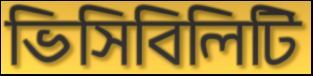
ভিসিবিলিটি